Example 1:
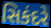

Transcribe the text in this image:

સિકંદરે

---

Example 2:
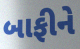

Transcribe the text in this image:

બાફીને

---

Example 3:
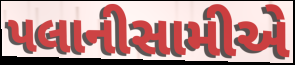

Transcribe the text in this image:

પલાનીસામીએ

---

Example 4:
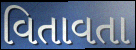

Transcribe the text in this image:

વિતાવતા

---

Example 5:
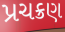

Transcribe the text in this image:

પ્રચક્રણ